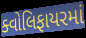
ક્વોલિફાયરમાં